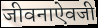
जीवनाऐवजी